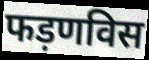
फड़णविस